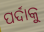
ପର୍ଦାକୁ